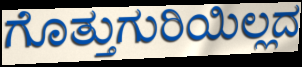
ಗೊತ್ತುಗುರಿಯಿಲ್ಲದ